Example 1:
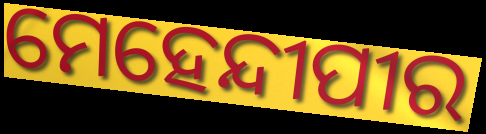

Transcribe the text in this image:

ମେହେନ୍ଦୀପୀର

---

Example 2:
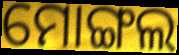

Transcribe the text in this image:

ମୋଙ୍ଗଲ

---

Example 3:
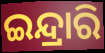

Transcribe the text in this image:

ଇନ୍ଦ୍ରାରି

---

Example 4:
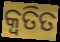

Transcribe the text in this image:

କ୍ୱତିତ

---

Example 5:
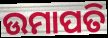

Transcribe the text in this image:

ଉମାପତି